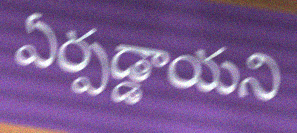
ఏర్పడ్డాయని